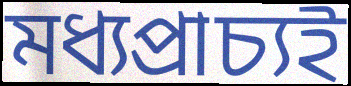
মধ্যপ্রাচ্যই